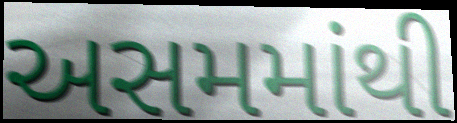
અસમમાંથી